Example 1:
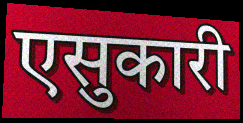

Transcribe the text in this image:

एसुकारी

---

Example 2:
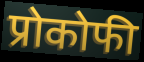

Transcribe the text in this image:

प्रोकोफी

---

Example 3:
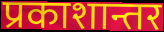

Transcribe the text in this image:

प्रकाशान्तर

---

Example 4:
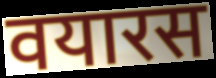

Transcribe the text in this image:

वयारस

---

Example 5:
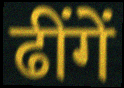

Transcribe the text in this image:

ढींगें